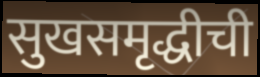
सुखसमृद्धीची